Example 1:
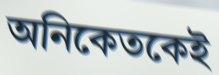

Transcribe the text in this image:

অনিকেতকেই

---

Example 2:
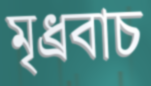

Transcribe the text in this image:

মৃধ্রবাচ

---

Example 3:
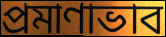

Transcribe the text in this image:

প্রমাণাভাব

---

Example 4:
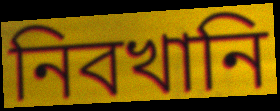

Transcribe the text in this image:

নিবখানি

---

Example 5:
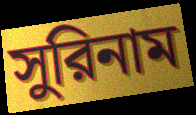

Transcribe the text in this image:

সুরিনাম